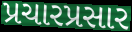
પ્રચારપ્રસાર